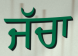
ਜੱਚਾ